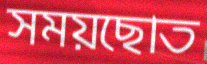
সময়ছোত